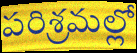
పరిశ్రమల్లో